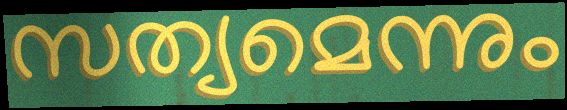
സത്യമെന്നും